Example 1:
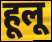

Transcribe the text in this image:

हूलू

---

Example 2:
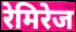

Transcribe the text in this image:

रेमिरेज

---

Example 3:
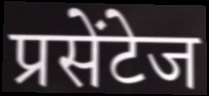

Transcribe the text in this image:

प्रसेंटेज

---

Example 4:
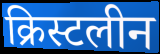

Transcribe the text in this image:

क्रिस्टलीन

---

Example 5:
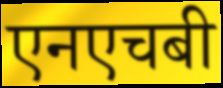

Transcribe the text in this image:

एनएचबी